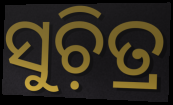
ସୁଚ଼ିତ୍ର